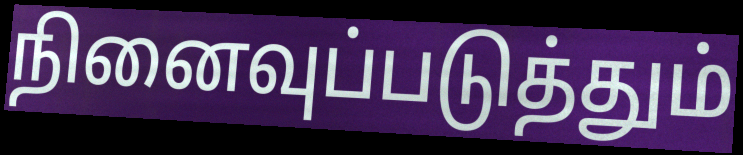
நினைவுப்படுத்தும்